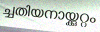
ച്ചതിയനായ്ക്കുറ്റം